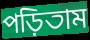
পড়িতাম